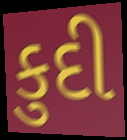
કુદી